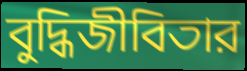
বুদ্ধিজীবিতার